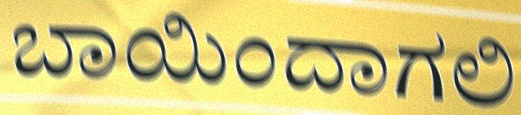
ಬಾಯಿಂದಾಗಲಿ